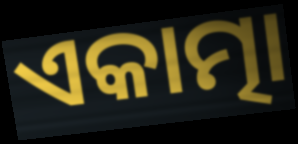
ଏକାତ୍ମା